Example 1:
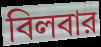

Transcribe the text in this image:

বিলবার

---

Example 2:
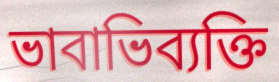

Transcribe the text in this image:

ভাবাভিব্যক্তি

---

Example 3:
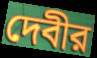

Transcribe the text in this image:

দেবীর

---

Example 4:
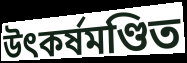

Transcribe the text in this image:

উৎকর্ষমণ্ডিত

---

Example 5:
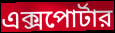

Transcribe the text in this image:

এক্সপোর্টার